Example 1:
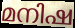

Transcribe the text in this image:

മനിഷ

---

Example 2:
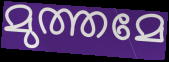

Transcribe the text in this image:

മുത്തമേ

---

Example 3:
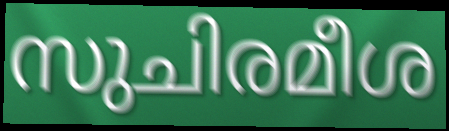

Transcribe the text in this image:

സുചിരമീശ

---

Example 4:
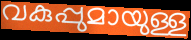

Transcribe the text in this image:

വകുപ്പുമായുള്ള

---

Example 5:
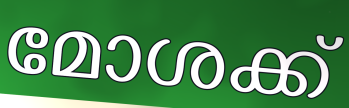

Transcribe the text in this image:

മോശക്ക്